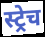
स्ट्रेच